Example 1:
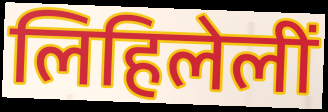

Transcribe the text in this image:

लिहिलेलीं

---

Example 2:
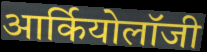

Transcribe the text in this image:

आर्कियोलॉजी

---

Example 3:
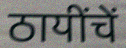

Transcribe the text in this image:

ठायींचें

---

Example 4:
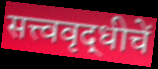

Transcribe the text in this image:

सत्त्ववृद्धीचें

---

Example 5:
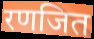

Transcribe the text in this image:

रणजित